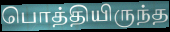
பொத்தியிருந்த